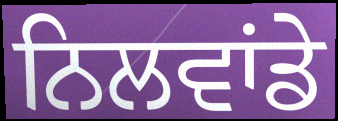
ਨਿਲਵਾਂਡੇ